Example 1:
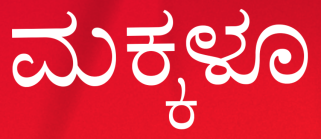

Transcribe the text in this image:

ಮಕ್ಕಳೂ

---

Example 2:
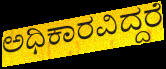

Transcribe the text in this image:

ಅಧಿಕಾರವಿದ್ದರೆ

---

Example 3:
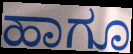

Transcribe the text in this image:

ಹಾಗೂ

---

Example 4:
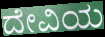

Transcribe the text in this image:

ದೇವಿಯ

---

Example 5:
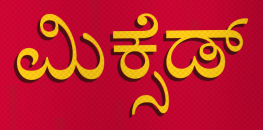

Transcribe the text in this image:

ಮಿಕ್ಸೆಡ್